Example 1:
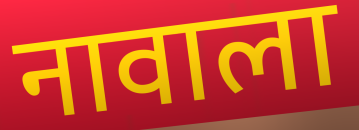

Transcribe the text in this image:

नावाला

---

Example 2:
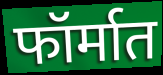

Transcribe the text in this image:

फॉर्मात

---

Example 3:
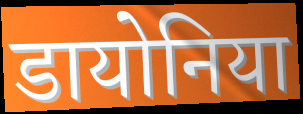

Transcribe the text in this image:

डायोनिया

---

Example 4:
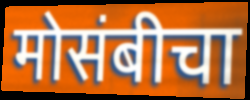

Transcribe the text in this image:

मोसंबीचा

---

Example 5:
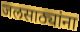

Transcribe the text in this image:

जलसाठ्यांना